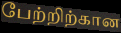
பேற்றிற்கான